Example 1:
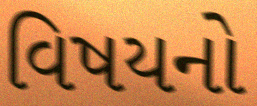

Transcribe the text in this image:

વિષયનો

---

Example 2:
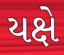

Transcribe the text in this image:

યક્ષે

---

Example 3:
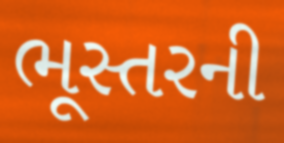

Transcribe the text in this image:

ભૂસ્તરની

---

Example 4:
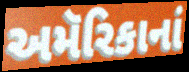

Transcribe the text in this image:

અમૅરિકાનાં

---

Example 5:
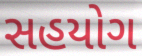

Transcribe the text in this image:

સહયોગ